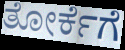
ತೋರ್ಕೆಗೆ